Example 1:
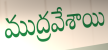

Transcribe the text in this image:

ముద్రవేశాయి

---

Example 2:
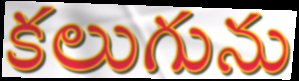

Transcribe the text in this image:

కలుగును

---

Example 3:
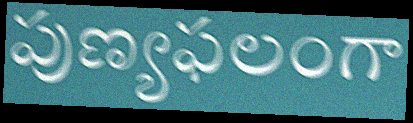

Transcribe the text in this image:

పుణ్యఫలంగా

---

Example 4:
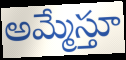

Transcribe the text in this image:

అమ్మేస్తూ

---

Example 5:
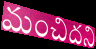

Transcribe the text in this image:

మంచిదని